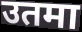
उतमा